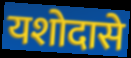
यशोदासे